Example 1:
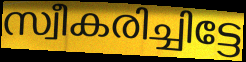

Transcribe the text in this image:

സ്വീകരിച്ചിട്ടേ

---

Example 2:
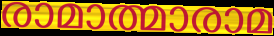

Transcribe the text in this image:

രാമാത്മാരാമ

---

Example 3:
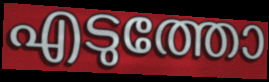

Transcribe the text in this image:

എടുത്തോ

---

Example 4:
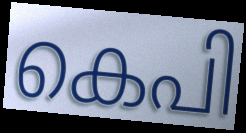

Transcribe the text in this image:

കെപി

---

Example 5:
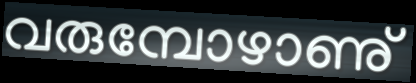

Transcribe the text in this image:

വരുമ്പോഴാണു്